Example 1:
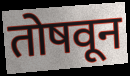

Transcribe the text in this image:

तोषवून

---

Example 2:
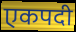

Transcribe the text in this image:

एकपदी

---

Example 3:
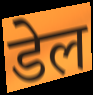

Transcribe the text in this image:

डेल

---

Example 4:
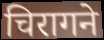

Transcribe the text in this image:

चिरागने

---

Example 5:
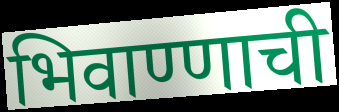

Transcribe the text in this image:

भिवाण्णाची